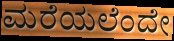
ಮರೆಯಲೆಂದೇ